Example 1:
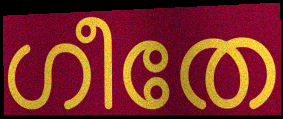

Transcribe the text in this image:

ഗീതേ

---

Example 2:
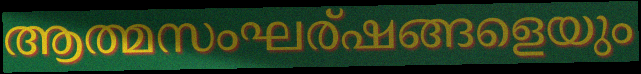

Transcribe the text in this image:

ആത്മസംഘര്ഷങ്ങളെയും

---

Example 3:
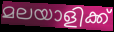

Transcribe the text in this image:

മലയാളിക്ക്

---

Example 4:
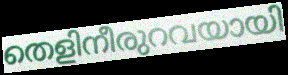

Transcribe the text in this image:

തെളിനീരുറവയായി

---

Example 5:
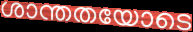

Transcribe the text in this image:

ശാന്തതയോടെ